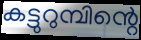
കട്ടുറുമ്പിന്റെ